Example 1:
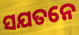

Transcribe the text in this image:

ସଯତନେ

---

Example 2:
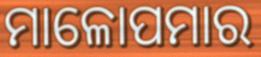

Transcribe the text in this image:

ମାଳୋପମାର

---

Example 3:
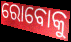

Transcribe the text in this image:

ରୋବୋକୁ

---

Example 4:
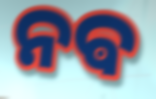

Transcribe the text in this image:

ନଵ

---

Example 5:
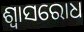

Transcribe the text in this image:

ଶ୍ୱାସରୋଧ